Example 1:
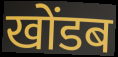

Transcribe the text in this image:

खोंडब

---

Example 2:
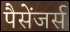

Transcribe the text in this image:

पैसेंजर्स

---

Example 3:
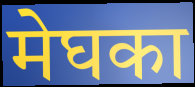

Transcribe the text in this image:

मेघका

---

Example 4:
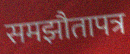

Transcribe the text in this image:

समझौतापत्र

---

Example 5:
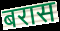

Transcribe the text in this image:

बरास